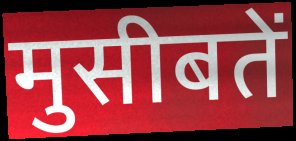
मुसीबतें